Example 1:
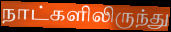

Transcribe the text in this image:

நாட்களிலிருந்து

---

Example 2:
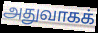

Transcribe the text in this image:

அதுவாகக்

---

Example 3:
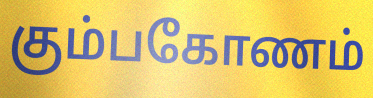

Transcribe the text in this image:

கும்பகோணம்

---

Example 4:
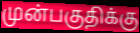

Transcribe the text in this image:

முன்பகுதிக்கு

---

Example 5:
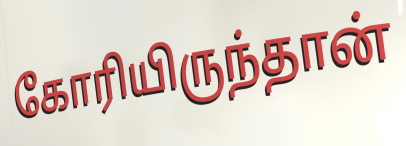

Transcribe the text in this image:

கோரியிருந்தான்